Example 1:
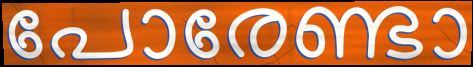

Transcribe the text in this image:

പോരേണ്ടാ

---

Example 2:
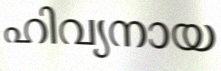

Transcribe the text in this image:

ഹിവ്യനായ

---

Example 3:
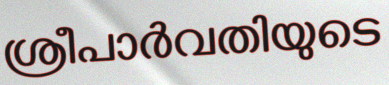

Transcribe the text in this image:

ശ്രീപാർവതിയുടെ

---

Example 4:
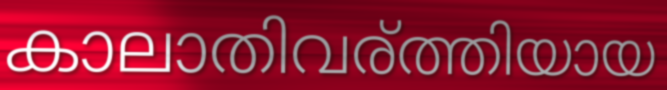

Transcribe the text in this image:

കാലാതിവര്ത്തിയായ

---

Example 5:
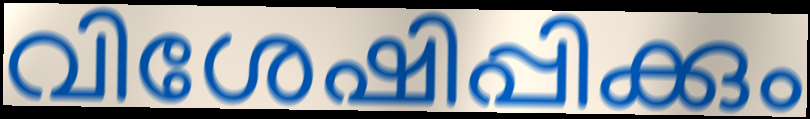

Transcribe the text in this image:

വിശേഷിപ്പിക്കും